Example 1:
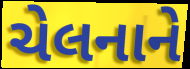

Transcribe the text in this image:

ચેલનાને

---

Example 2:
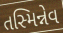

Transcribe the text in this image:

તસ્મિન્નેવ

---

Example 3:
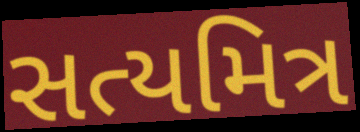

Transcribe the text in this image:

સત્યમિત્ર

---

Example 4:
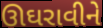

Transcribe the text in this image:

ઊઘરાવીને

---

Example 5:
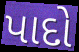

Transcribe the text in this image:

પાદો